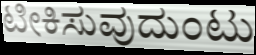
ಟೀಕಿಸುವುದುಂಟು